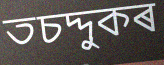
তচদ্দুকৰ